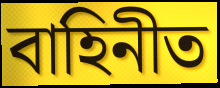
বাহিনীত